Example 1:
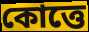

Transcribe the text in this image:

কোত্তে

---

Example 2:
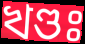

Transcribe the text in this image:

খণ্ডঃ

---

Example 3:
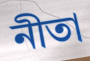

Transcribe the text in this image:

নীতা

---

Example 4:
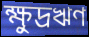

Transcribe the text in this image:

ক্ষুদ্রঋণ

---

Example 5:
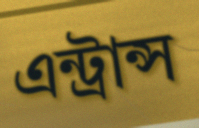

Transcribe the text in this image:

এন্ট্রান্স